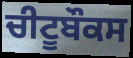
ਚੀਟੂਬੌਕਸ